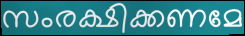
സംരക്ഷിക്കണമേ